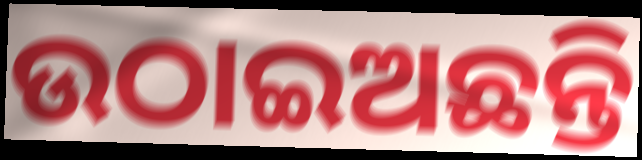
ଉଠାଇଅଛନ୍ତି